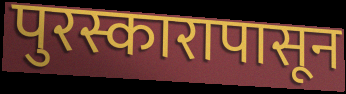
पुरस्कारापासून